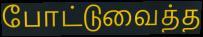
போட்டுவைத்த